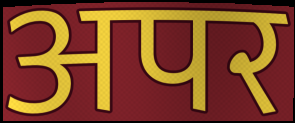
अपर